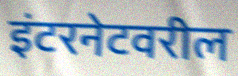
इंटरनेटवरील